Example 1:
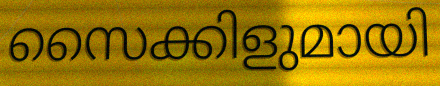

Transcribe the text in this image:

സൈക്കിളുമായി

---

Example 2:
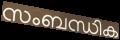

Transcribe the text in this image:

സംബന്ധിക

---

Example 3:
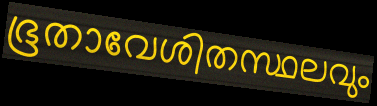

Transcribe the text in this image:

ഭൂതാവേശിതസ്ഥലവും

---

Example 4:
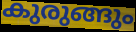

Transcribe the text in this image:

കുരുങ്ങും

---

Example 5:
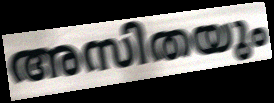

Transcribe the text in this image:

അസിതയും